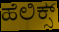
ಹೆಲಿಕ್ಸ್